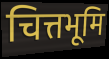
चित्तभूमि